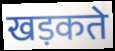
खड़कते